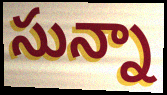
సున్నా